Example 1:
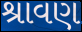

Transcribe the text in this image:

શ્રાવણ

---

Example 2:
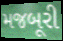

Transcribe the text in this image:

મજબૂરી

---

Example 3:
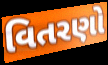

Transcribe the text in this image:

વિતરણો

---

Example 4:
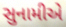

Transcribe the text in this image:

સુનામીએ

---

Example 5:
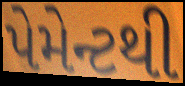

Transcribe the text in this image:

પેમેન્ટથી